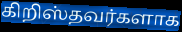
கிறிஸ்தவர்களாக